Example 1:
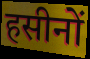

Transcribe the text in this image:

हसीनों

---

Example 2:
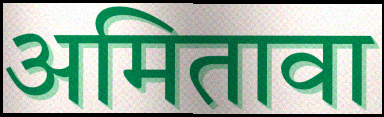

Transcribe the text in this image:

अमितावा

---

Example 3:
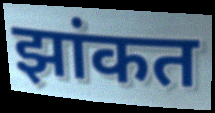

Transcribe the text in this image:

झांकत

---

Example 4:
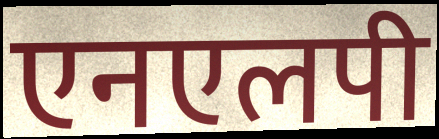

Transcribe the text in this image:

एनएलपी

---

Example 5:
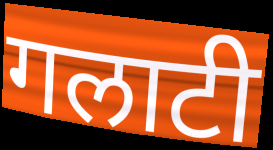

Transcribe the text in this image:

गलाटी